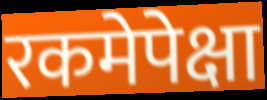
रकमेपेक्षा